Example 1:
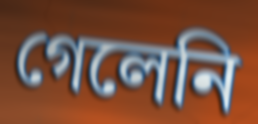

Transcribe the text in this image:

গেলেনি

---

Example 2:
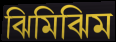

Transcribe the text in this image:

ঝিমিঝিম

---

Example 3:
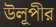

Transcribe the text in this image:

উলূপীর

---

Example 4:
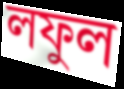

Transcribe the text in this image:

লফুল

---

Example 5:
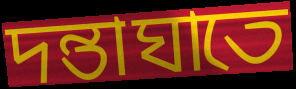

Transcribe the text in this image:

দন্তাঘাতে